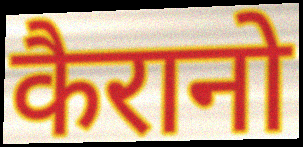
कैरानो